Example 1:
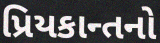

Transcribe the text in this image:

પ્રિયકાન્તનો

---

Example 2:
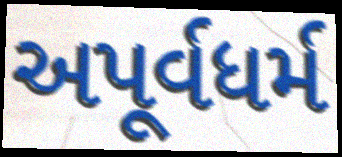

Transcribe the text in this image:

અપૂર્વધર્મ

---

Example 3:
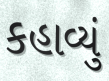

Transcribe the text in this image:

કહાવ્યું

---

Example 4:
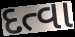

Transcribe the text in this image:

દત્વા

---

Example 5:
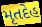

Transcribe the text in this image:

મૃતદેહ